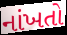
નાંખતો